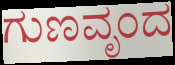
ಗುಣವೃಂದ